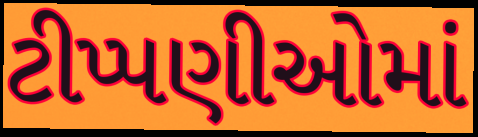
ટીપ્પણીઓમાં